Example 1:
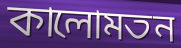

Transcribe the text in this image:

কালোমতন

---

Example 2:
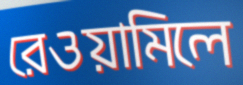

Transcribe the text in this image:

রেওয়ামিলে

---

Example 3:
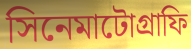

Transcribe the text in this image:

সিনেমাটোগ্রাফি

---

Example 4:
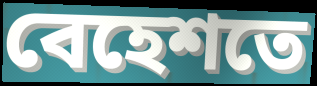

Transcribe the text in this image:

বেহেশতে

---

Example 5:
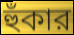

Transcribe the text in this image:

হুঁকার